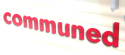
communed